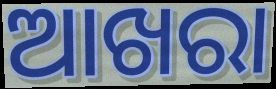
ଆଖରା